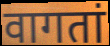
वागतां